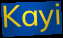
Kayi